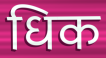
धिक